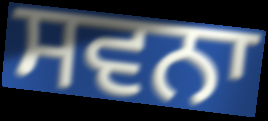
ਸਵਨਾ